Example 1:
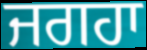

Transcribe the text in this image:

ਜਗਹਾ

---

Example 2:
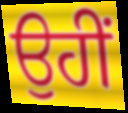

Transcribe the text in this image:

ਉਹੀਂ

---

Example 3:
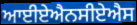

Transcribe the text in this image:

ਆਈਏਐਨਸੀਏਐਸ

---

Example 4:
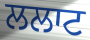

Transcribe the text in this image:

ਲਲਾਟ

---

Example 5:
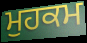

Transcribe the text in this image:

ਮੁਹਕਮ